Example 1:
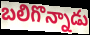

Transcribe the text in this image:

బలిగొన్నాడు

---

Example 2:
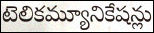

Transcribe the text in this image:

టెలికమ్యూనికేషన్లు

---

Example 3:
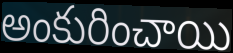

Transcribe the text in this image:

అంకురించాయి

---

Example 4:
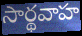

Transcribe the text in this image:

సార్థవాహ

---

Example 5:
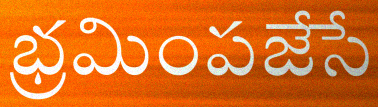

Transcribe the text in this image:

భ్రమింపజేసే